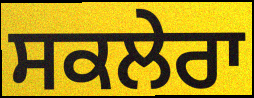
ਸਕਲੇਰਾ